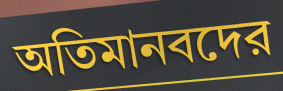
অতিমানবদের